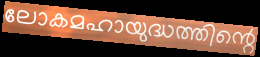
ലോകമഹായുദ്ധത്തിന്റെ